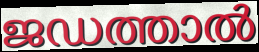
ജഡത്താൽ